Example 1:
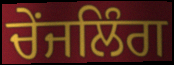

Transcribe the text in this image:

ਚੇਂਜਲਿੰਗ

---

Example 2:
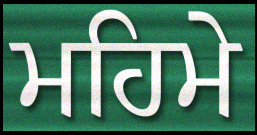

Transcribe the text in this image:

ਮਹਿਮੇ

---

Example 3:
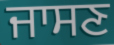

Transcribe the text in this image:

ਜਾਸਣ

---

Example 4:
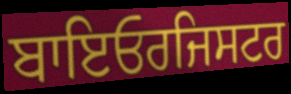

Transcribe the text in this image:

ਬਾਇਓਰਜਿਸਟਰ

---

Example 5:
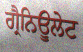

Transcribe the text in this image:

ਗ੍ਰੈਨਿਊਲੇਟ